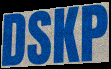
DSKP